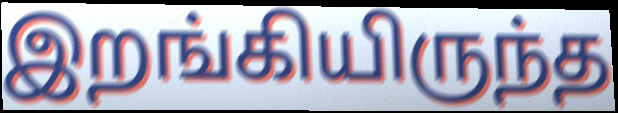
இறங்கியிருந்த